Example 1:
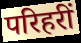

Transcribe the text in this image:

परिहरीं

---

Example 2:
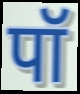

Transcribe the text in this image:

पॉ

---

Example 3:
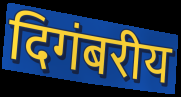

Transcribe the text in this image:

दिगंबरीय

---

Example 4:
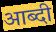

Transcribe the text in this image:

आब्दी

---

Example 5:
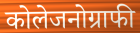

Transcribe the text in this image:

कोलेजनोग्राफी